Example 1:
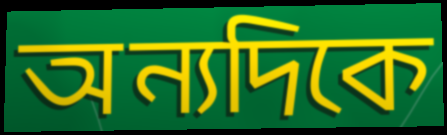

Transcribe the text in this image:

অন্যদিকে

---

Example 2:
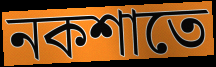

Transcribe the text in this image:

নকশাতে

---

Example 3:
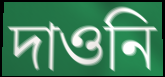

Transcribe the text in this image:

দাওনি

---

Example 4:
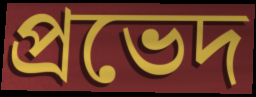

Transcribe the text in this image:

প্রভেদ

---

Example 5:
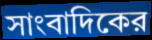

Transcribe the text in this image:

সাংবাদিকের